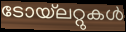
ടോയ്‌ലറ്റുകൾ